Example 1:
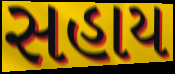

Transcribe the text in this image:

સહાય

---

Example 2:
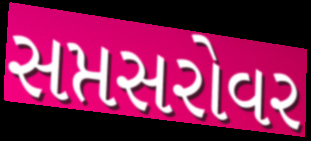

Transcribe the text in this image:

સપ્તસરોવર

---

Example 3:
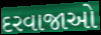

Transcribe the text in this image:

દરવાજાઓ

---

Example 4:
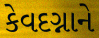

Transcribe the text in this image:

કેવદગ્નાને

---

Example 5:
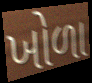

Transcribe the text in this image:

ખોળા